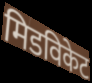
मिडविकेट